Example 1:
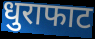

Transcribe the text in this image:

धुराफाट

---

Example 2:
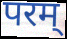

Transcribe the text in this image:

परम्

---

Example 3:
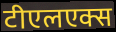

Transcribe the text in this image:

टीएलएक्स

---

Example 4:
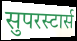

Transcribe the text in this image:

सुपरस्‍टार्स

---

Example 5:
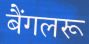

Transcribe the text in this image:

बैंगलरू